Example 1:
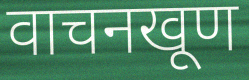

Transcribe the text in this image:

वाचनखूण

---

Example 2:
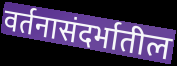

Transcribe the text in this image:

वर्तनासंदर्भातील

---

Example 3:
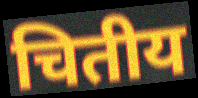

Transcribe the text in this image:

चितीय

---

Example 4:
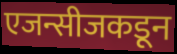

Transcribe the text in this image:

एजन्सीजकडून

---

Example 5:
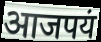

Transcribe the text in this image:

आजपयं